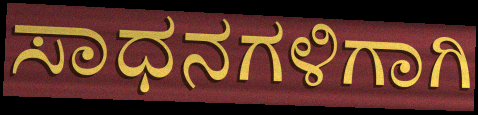
ಸಾಧನಗಳಿಗಾಗಿ